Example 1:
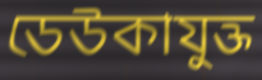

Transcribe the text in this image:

ডেউকাযুক্ত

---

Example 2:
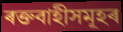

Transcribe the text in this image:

ৰক্তবাহীসমূহৰ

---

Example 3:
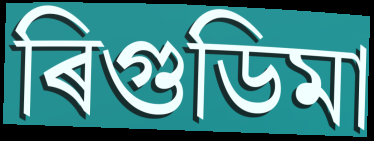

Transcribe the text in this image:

ৰিগুডিমা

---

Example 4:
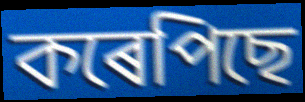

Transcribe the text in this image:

কৰেপিছে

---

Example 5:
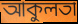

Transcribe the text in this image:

আকুলতা